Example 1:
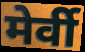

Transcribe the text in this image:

मेर्वी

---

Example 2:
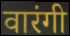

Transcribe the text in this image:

वारंगी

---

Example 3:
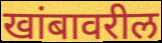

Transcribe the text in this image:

खांबावरील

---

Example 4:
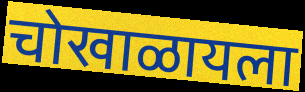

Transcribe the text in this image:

चोखाळायला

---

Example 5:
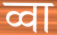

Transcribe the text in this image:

व्वा